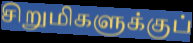
சிறுமிகளுக்குப்